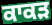
ਕਾਕੜ